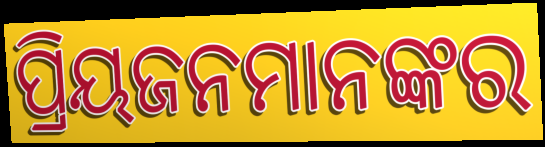
ପ୍ରିୟଜନମାନଙ୍କର